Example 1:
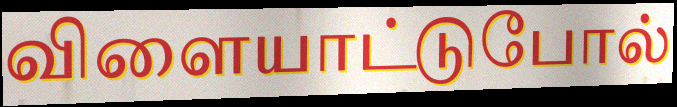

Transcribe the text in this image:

விளையாட்டுபோல்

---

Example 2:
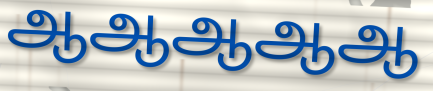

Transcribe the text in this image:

ஆஆஆஆஆ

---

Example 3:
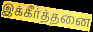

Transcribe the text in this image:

இக்கீர்த்தனை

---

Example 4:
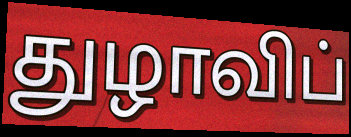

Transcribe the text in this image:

துழாவிப்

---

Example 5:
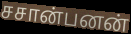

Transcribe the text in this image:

சசான்பனன்